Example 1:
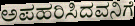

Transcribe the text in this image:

ಅಪಹರಿಸಿದವನಿಗೆ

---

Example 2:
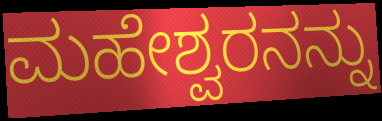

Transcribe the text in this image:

ಮಹೇಶ್ವರನನ್ನು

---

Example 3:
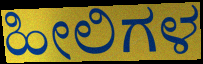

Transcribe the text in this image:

ಹೀಲಿಗಳ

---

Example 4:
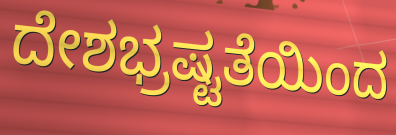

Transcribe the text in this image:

ದೇಶಭ್ರಷ್ಟತೆಯಿಂದ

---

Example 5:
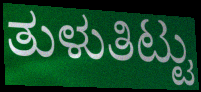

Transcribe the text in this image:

ತುಳುತಿಟ್ಟು